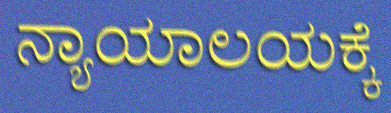
ನ್ಯಾಯಾಲಯಕ್ಕೆ